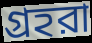
গ্রহরা